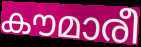
കൗമാരീ